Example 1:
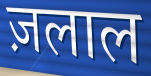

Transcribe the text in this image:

ज़लाल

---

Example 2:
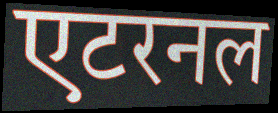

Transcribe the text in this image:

एटरनल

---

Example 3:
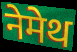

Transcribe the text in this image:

नेमेथ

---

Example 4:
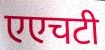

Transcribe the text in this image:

एएचटी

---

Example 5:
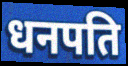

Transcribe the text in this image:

धनपति